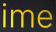
ime